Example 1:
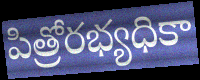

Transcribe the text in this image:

పిత్రోరభ్యధికా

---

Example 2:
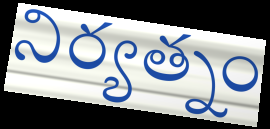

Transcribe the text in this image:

నిర్యత్నం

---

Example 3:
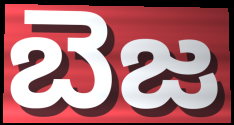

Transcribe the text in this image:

బెజ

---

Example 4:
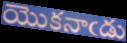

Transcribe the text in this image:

యొకనాఁడు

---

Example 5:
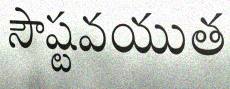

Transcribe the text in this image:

సౌష్టవయుత